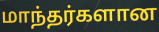
மாந்தர்களான